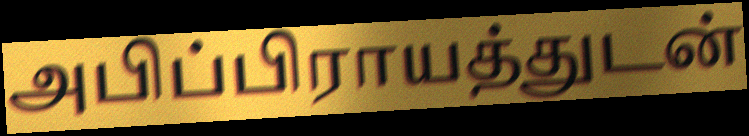
அபிப்பிராயத்துடன்